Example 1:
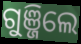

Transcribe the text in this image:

ଗୁଞ୍ଜିଲେ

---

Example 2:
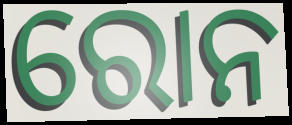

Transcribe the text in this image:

ରୋନ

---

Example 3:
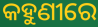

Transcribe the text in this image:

କହୁଣୀରେ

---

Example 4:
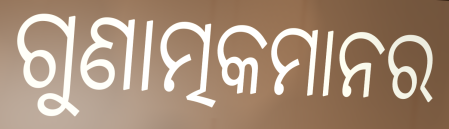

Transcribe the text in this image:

ଗୁଣାତ୍ମକମାନର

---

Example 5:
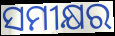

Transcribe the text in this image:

ସମୀକ୍ଷର